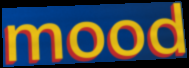
mood